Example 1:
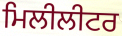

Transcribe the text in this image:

ਮਿਲੀਲੀਟਰ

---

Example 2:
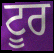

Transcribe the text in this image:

ਟੂਰ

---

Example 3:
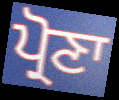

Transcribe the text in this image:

ਪ੍ਰੋਣਾ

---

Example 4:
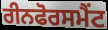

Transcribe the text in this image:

ਰੀਨਫੋਰਸਮੈਂਟ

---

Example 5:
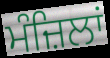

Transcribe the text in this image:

ਮੰਜ਼ਿਲਾਂ